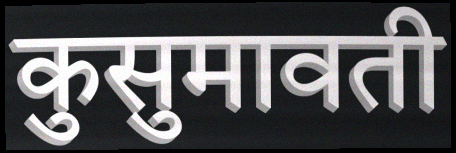
कुसुमावती